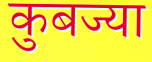
कुबज्या